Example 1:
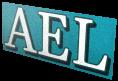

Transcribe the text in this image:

AEL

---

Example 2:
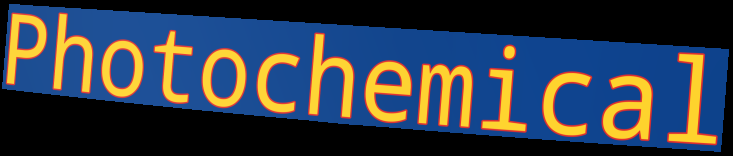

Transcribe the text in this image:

Photochemical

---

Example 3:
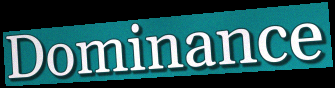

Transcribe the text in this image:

Dominance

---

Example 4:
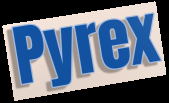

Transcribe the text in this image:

Pyrex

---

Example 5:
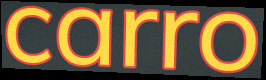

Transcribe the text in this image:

carro